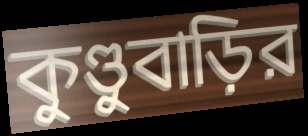
কুণ্ডুবাড়ির